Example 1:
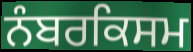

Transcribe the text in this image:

ਨੰਬਰਕਿਸਮ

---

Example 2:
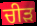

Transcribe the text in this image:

ਚੀੜ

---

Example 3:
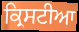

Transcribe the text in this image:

ਕ੍ਰਿਸਟੀਆ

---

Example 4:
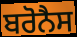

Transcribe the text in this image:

ਬਰੋਨੈਸ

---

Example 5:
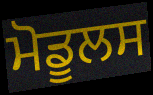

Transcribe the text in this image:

ਮੋਡੂਲਸ